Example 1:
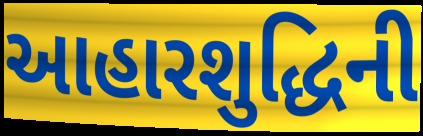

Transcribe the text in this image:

આહારશુદ્ધિની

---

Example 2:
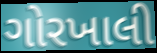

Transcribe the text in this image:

ગોરખાલી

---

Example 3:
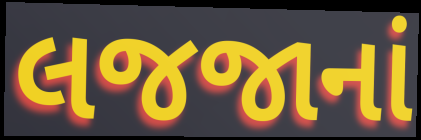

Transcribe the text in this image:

લજજાનાં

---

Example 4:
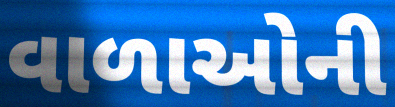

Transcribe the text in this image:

વાળાઓની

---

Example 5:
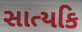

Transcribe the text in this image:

સાત્યકિ